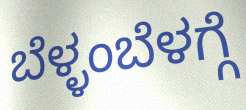
ಬೆಳ್ಳಂಬೆಳಗ್ಗೆ